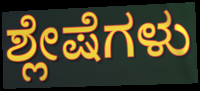
ಶ್ಲೇಷೆಗಳು